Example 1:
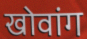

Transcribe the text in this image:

खोवांग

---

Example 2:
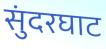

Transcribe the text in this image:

सुंदरघाट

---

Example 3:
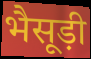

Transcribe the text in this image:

भैसूड़ी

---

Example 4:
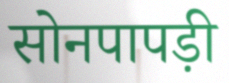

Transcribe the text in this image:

सोनपापड़ी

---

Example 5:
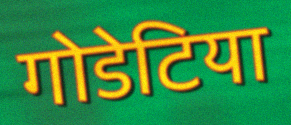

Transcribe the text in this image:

गोडेटिया